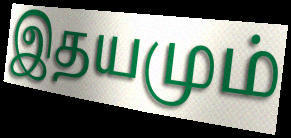
இதயமும்